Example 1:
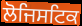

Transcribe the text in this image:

ਲੋਜਿਸਟਿਕ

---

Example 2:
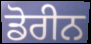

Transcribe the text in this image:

ਡੋਰੀਨ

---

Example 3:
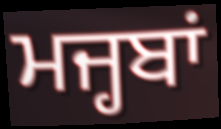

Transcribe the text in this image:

ਮਜ੍ਹਬਾਂ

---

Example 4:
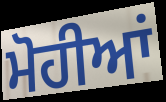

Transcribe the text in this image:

ਮੋਹੀਆਂ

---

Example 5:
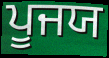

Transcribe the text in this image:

ਪੂਜਯ